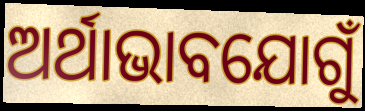
ଅର୍ଥାଭାବଯୋଗୁଁ